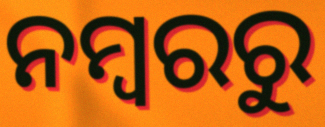
ନମ୍ୱରରୁ